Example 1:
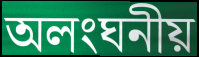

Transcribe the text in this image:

অলংঘনীয়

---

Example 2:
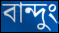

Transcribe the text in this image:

বান্দুং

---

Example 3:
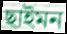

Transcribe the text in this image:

ছাইমন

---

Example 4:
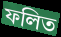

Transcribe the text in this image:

ফলিত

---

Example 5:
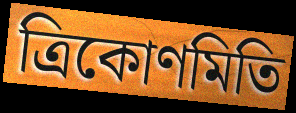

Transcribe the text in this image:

ত্ৰিকোণমিতি